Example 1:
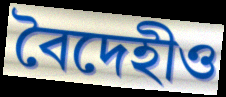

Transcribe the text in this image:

বৈদেহীও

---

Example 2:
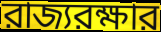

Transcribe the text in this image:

রাজ্যরক্ষার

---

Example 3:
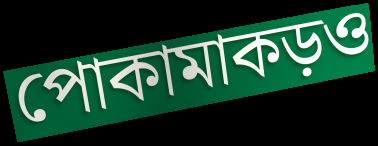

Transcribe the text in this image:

পোকামাকড়ও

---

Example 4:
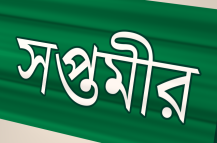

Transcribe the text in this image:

সপ্তমীর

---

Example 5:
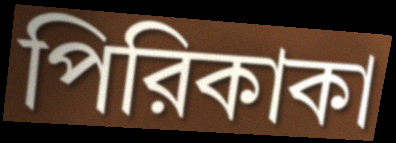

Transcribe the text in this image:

পিরিকাকা